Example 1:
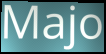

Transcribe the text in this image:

Majo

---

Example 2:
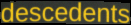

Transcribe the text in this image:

descedents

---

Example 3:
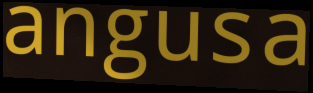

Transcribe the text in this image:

angusa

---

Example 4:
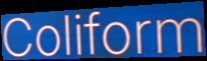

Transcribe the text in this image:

Coliform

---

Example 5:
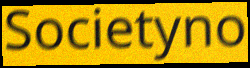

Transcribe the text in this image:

Societyno